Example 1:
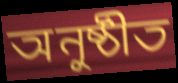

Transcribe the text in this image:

অনুষ্ঠীত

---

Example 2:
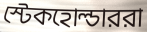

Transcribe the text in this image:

স্টেকহোল্ডাররা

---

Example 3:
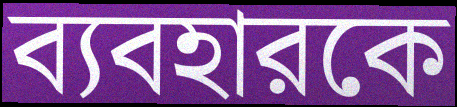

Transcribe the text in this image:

ব্যবহারকে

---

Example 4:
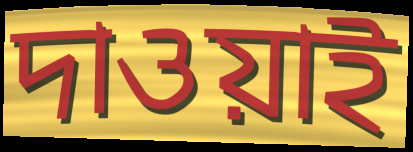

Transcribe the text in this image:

দাওয়াই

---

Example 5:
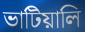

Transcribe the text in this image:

ভাটিয়ালি